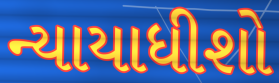
ન્યાયાધીશો